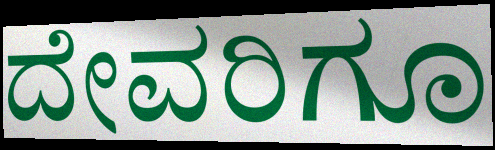
ದೇವರಿಗೂ